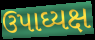
ઉપાઘ્યક્ષ